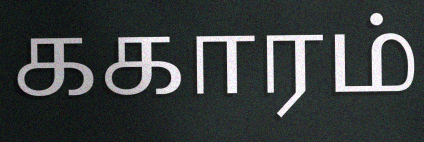
ககாரம்